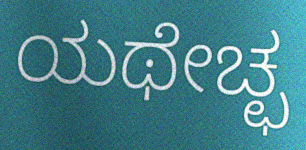
ಯಥೇಚ್ಛ